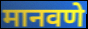
मानवणे